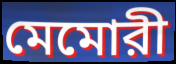
মেমোরী